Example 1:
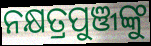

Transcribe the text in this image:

ନକ୍ଷତ୍ରପୁଞ୍ଜଙ୍କୁ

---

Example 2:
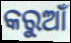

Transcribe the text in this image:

କରୁଆଁ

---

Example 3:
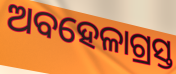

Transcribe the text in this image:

ଅବହେଳାଗ୍ରସ୍ତ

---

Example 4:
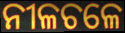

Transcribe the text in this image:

ନୀଳଚଳେ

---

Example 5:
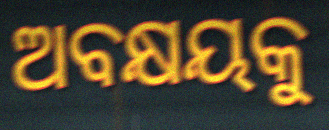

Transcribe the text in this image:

ଅବକ୍ଷୟକୁ